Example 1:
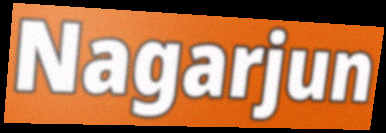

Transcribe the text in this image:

Nagarjun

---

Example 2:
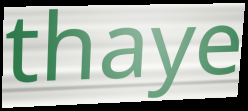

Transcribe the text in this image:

thaye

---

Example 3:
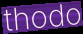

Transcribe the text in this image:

thodo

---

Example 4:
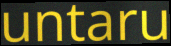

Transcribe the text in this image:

untaru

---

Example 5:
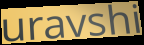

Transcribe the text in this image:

uravshi